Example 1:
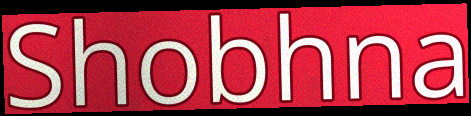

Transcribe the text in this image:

Shobhna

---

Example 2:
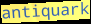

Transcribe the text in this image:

antiquark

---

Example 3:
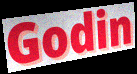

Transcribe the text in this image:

Godin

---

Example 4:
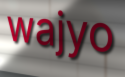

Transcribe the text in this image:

wajyo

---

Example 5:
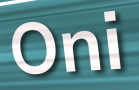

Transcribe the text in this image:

Oni